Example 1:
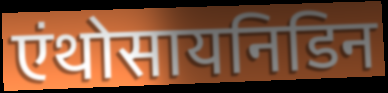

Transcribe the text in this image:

एंथोसायनिडिन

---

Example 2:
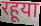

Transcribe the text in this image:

रहूया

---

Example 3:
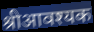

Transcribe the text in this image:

श्रीआवश्यक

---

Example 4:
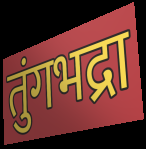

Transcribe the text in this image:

तुंगभद्रा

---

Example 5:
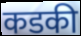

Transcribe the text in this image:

कडकी